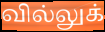
வில்லுக்